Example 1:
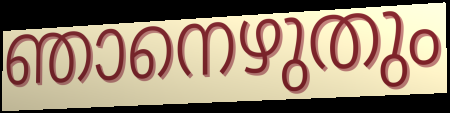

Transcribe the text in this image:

ഞാനെഴുതും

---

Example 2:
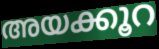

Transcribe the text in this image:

അയക്കൂറ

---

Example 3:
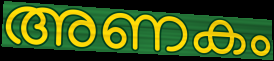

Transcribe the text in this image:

അണകം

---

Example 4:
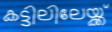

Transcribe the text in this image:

കട്ടിലിലേയ്ക്ക്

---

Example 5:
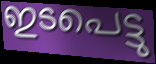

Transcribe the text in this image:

ഇടപെട്ടു